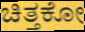
ಚಿತ್ತಕೋ